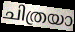
ചിത്രയാ